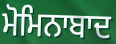
ਮੋਮਿਨਾਬਾਦ